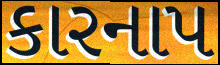
કારનાપ